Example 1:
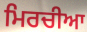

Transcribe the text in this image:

ਮਿਰਚੀਆ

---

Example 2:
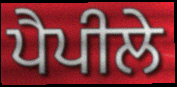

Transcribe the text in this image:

ਪੈਪੀਲੇ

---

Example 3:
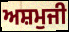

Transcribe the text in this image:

ਅਸ਼ਮੁਜੀ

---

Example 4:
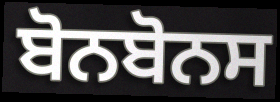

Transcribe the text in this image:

ਬੋਨਬੋਨਸ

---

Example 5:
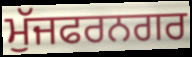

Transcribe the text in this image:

ਮੁੱਜਫਰਨਗਰ